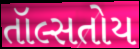
તૉલ્સતોય